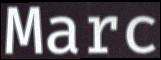
Marc